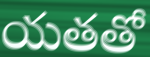
యతతో